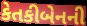
કેતકીબેનની